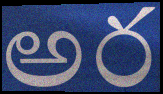
అర